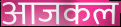
आजकल